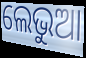
ଲେଭୁଆ